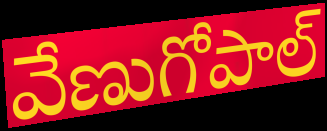
వేణుగోపాల్